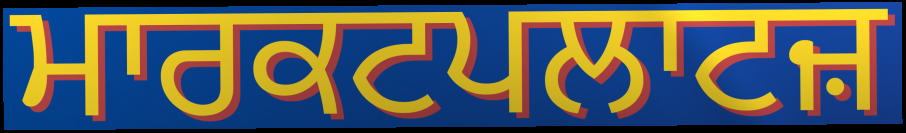
ਮਾਰਕਟਪਲਾਟਜ਼